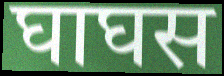
घाघस